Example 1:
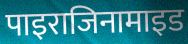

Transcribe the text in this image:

पाइराजिनामाइड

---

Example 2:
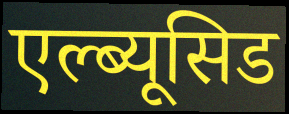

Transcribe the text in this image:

एल्ब्यूसिड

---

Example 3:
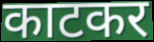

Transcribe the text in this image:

काटकर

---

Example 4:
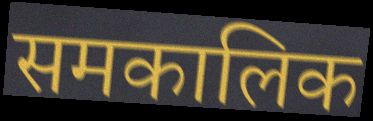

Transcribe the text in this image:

समकालिक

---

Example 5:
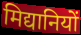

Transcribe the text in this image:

मिद्यानियों